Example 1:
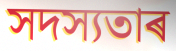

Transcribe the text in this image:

সদস্যতাৰ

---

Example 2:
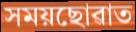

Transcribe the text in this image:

সময়ছোৱাত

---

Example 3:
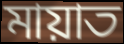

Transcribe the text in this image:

মায়াত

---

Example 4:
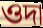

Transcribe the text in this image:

ওদা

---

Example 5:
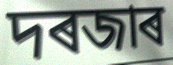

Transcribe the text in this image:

দৰজাৰ